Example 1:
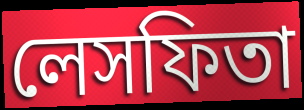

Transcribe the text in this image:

লেসফিতা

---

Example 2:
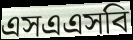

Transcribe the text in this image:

এসএএসবি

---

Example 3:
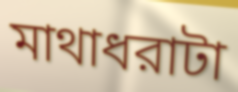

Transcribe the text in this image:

মাথাধরাটা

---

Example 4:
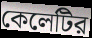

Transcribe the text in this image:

কেলেটির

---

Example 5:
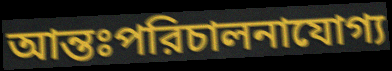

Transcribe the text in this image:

আন্তঃপরিচালনাযোগ্য